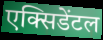
एक्सिडेंटल